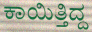
ಕಾಯಿತ್ತಿದ್ದ